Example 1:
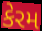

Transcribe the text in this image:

કેરમ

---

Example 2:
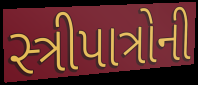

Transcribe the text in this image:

સ્ત્રીપાત્રોની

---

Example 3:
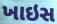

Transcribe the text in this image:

ખાઇસ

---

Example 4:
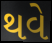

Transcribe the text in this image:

થવે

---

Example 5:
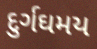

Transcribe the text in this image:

દુર્ગઘમય